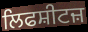
ਲਿਫਸ਼ੀਟਜ਼